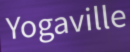
Yogaville